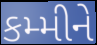
કમ્મીને